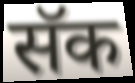
सॅक